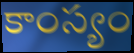
కాంస్యం